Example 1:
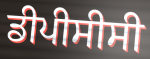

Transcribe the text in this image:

ਡੀਪੀਸੀਸੀ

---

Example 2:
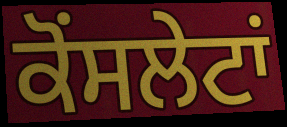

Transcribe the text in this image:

ਕੋਂਸਲੇਟਾਂ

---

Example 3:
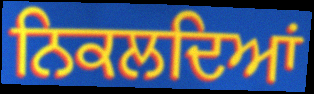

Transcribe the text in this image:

ਨਿਕਲਦਿਆਂ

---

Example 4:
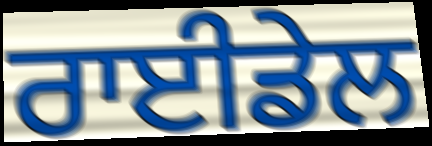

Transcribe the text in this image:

ਰਾਈਡੇਲ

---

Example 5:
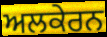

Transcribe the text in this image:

ਅਲਕੇਰਨ